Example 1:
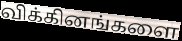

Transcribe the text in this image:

விக்கினங்களை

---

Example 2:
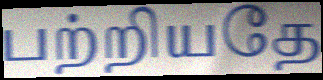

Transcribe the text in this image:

பற்றியதே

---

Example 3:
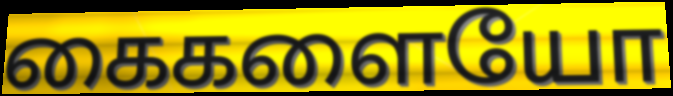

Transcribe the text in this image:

கைகளையோ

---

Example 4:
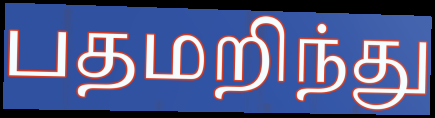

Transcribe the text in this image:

பதமறிந்து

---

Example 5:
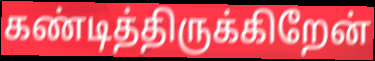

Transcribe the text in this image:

கண்டித்திருக்கிறேன்